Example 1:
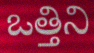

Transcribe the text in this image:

ఒత్తిని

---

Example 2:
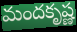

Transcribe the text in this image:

మందకృష్ణ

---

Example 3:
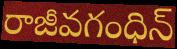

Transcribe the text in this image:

రాజీవగంధిన్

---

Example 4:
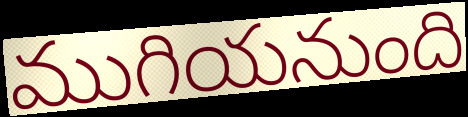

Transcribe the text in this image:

ముగియనుంది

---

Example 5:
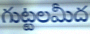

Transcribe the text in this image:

గుట్టలమీద